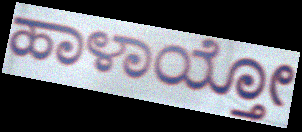
ಹಾಳಾಯ್ತೋ